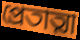
প্রেতাত্মা